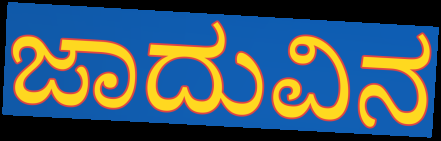
ಜಾದುವಿನ